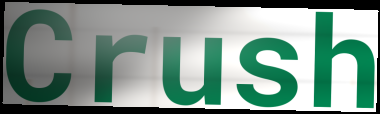
Crush